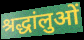
श्रद्धांलुओं